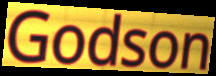
Godson